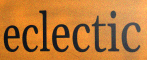
eclectic